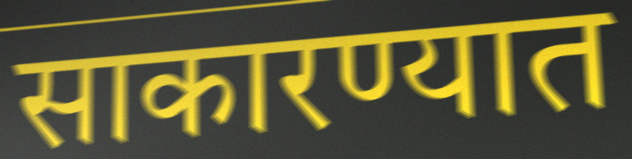
साकारण्यात